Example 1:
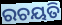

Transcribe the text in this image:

ରଚୟତି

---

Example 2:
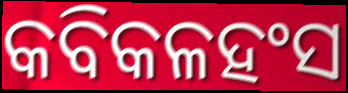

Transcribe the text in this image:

କବିକଳହଂସ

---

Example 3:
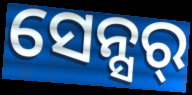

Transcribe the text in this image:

ସେନ୍ସର୍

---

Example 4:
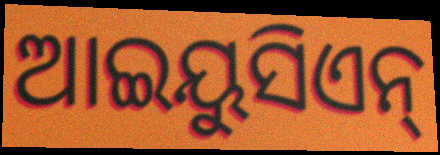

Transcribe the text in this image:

ଆଇୟୁସିଏନ୍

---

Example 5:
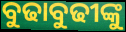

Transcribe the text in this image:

ବୁଢାବୁଢୀଙ୍କୁ